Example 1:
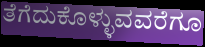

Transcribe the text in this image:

ತೆಗೆದುಕೊಳ್ಳುವವರೆಗೂ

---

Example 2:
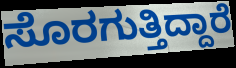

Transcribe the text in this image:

ಸೊರಗುತ್ತಿದ್ದಾರೆ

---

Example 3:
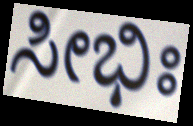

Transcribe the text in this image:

ಸೀಭಿಃ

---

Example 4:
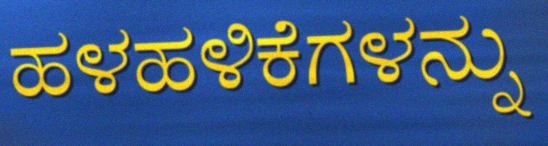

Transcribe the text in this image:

ಹಳಹಳಿಕೆಗಳನ್ನು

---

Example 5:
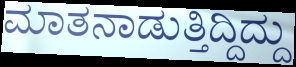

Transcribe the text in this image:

ಮಾತನಾಡುತ್ತಿದ್ದಿದ್ದು